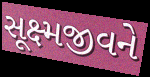
સૂક્ષ્મજીવને